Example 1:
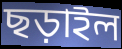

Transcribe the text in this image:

ছড়াইল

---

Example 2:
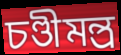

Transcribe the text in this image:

চণ্ডীমন্ত্র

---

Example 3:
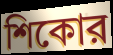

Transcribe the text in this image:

শিকোর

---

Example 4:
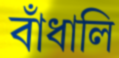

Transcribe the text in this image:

বাঁধালি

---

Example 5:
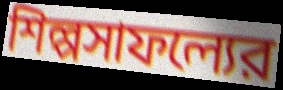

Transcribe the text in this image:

শিল্পসাফল্যের